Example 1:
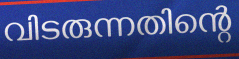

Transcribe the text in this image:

വിടരുന്നതിന്റെ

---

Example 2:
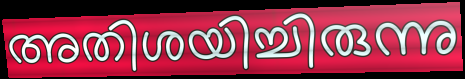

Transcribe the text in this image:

അതിശയിച്ചിരുന്നു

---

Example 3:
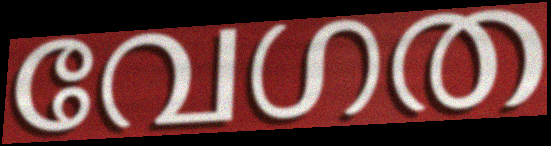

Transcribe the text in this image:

വേഗത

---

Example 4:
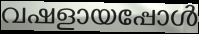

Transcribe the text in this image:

വഷളായപ്പോൾ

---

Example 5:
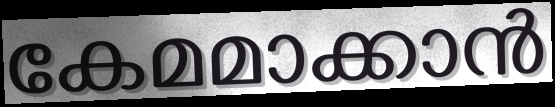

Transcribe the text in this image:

കേമമാക്കാൻ